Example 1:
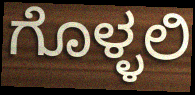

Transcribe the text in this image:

ಗೊಳ್ಳಲಿ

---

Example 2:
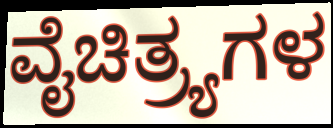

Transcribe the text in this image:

ವೈಚಿತ್ರ್ಯಗಳ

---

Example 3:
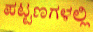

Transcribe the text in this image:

ಪಟ್ಟಣಗಳಲ್ಲಿ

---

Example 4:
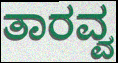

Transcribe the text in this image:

ತಾರವ್ವ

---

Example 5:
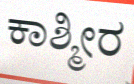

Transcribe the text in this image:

ಕಾಶ್ಮೀರ